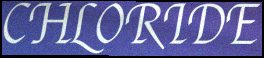
CHLORIDE